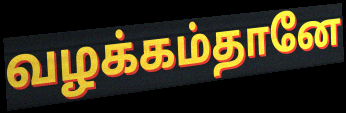
வழக்கம்தானே